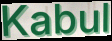
Kabul